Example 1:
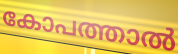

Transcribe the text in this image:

കോപത്താൽ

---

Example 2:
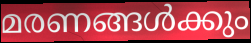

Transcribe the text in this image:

മരണങ്ങൾക്കും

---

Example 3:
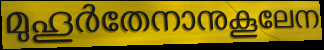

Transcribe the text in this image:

മുഹൂർതേനാനുകൂലേന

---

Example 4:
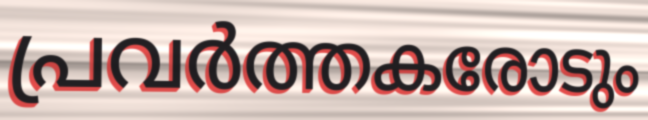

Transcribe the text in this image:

പ്രവർത്തകരോടും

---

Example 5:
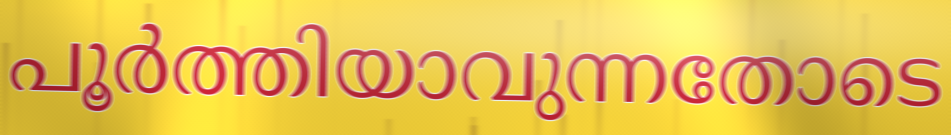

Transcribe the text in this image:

പൂർത്തിയാവുന്നതോടെ